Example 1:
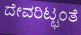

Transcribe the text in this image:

ದೇವರಿಟ್ಟಂತೆ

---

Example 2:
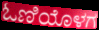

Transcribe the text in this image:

ಓಣಿಯೊಳಗ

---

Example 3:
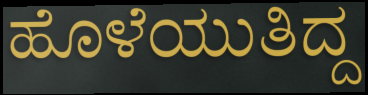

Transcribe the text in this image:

ಹೊಳೆಯುತಿದ್ದ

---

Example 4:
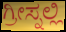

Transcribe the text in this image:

ಗ್ರೀಸ್ನಲ್ಲಿ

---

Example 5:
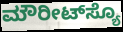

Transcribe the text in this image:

ಮೌರೀಟ್‌ಸ್ಯೊ